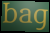
bag